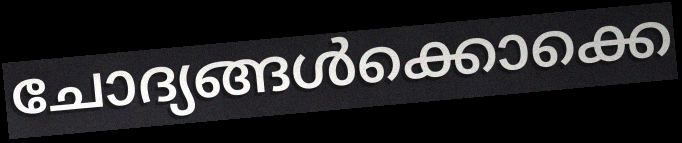
ചോദ്യങ്ങൾക്കൊക്കെ